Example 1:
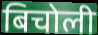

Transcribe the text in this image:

बिचोली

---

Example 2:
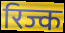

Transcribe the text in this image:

रिज्क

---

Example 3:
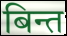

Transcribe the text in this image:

बिन्त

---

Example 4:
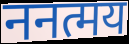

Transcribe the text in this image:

ननत्मय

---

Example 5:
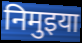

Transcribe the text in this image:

निमुइया